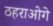
ठहराओगे